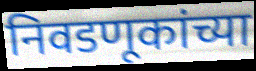
निवडणूकांच्या